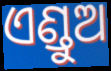
ଏଣ୍ଡୁଅ